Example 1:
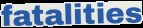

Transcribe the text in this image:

fatalities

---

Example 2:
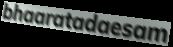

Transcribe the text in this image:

bhaaratadaesam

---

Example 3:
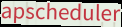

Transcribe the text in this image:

apscheduler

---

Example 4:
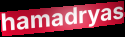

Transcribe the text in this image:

hamadryas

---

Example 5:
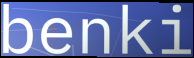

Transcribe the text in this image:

benki